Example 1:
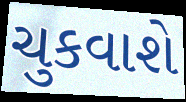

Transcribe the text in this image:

ચુકવાશે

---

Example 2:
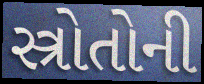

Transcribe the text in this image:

સ્ત્રોતોની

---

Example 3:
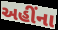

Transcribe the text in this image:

અહીંના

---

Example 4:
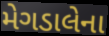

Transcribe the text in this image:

મેગડાલેના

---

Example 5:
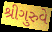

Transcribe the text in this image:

શ્રીગુરુવે